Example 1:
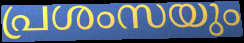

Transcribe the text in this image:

പ്രശംസയും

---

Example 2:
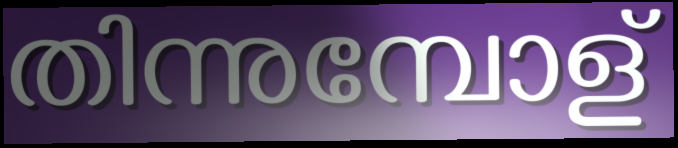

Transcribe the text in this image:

തിന്നുമ്പോള്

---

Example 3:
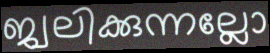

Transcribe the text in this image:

ജ്വലിക്കുന്നല്ലോ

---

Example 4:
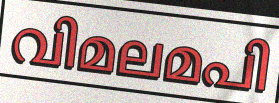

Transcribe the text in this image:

വിമലമപി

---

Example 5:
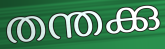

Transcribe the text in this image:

തന്തക്കു